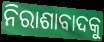
ନିରାଶାବାଦକୁ